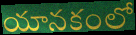
యానకంలో